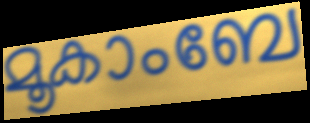
മൂകാംബേ